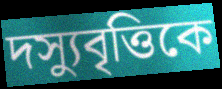
দস্যুবৃত্তিকে